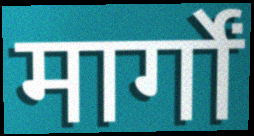
मार्गों